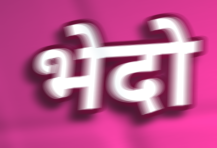
भेदो